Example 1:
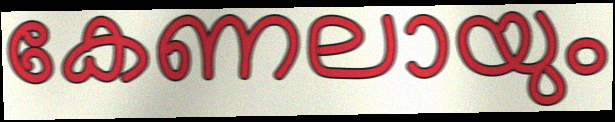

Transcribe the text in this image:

കേണലായും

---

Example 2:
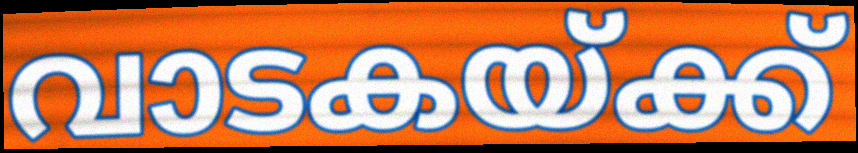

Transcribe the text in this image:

വാടകയ്ക്ക്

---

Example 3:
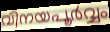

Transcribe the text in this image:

വിനയപൂർവ്വം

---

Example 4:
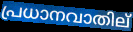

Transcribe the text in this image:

പ്രധാനവാതില്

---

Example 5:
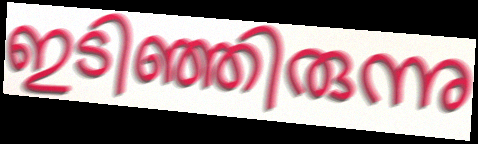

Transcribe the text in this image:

ഇടിഞ്ഞിരുന്നു